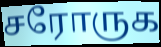
சரோருக